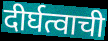
दीर्घत्वाची